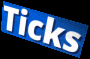
Ticks